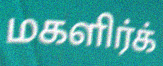
மகளிர்க்